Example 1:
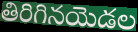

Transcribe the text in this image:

తిరిగినయెడల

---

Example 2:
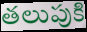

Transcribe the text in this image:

తలుపుకి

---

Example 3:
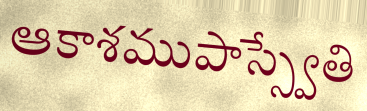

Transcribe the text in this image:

ఆకాశముపాస్స్వేతి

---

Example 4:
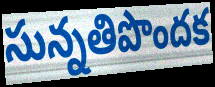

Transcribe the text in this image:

సున్నతిపొందక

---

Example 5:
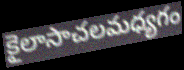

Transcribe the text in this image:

కైలాసాచలమధ్యగం